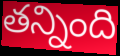
తన్నింది